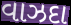
વાઝદા